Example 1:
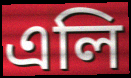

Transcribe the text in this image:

এলি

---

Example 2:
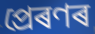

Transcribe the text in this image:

প্ৰেৰণৰ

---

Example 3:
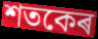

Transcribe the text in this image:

শতকেৰ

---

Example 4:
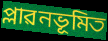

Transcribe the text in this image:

প্লাৱনভূমিত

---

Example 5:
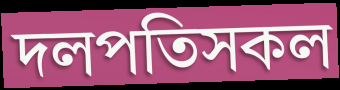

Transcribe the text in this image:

দলপতিসকল